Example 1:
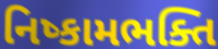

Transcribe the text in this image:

નિષ્કામભક્તિ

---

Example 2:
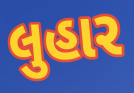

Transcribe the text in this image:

લુહાર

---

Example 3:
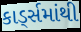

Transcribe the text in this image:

કાર્ડ્સમાંથી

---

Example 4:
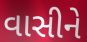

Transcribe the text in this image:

વાસીને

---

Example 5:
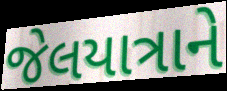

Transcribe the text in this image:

જેલયાત્રાને